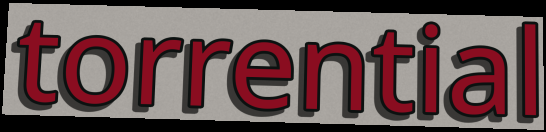
torrential